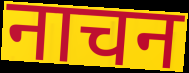
नाचन